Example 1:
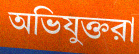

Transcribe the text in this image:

অভিযুক্তরা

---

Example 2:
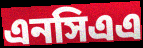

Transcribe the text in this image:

এনসিএএ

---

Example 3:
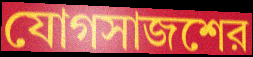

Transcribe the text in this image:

যোগসাজশের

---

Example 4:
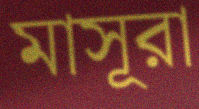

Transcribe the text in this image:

মাসূরা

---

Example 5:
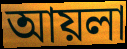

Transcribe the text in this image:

আয়লা